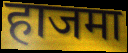
हाजमा